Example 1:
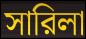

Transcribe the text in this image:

সারিলা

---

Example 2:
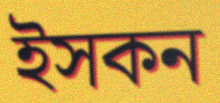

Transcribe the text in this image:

ইসকন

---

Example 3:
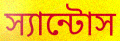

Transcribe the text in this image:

স্যান্টোস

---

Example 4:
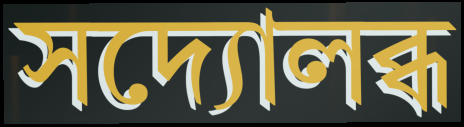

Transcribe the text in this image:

সদ্যোলব্ধ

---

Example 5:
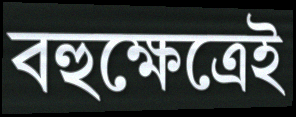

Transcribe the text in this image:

বহুক্ষেত্রেই